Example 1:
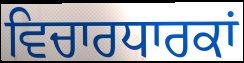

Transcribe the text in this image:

ਵਿਚਾਰਧਾਰਕਾਂ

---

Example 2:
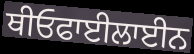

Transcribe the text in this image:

ਥੀਓਫਾਈਲਾਈਨ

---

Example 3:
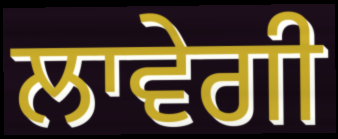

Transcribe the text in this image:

ਲਾਵੇਗੀ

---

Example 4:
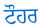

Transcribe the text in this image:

ਟੌਹਰ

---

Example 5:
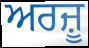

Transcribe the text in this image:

ਅਰਜ਼ੂ